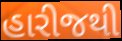
હારીજથી